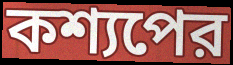
কশ্যপের